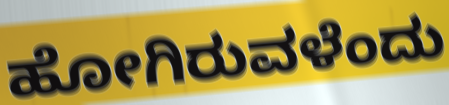
ಹೋಗಿರುವಳೆಂದು